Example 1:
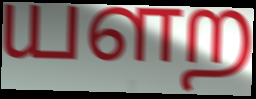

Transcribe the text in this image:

யளற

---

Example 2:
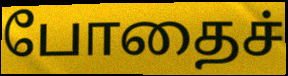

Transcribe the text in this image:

போதைச்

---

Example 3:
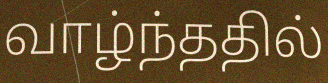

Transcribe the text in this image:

வாழ்ந்ததில்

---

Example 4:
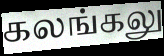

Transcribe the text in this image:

கலங்கலு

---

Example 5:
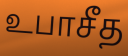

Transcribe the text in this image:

உபாசீத